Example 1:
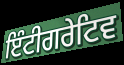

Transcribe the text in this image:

ਇੰਟੀਗਰੇਟਿਵ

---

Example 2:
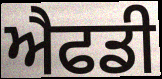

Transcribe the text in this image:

ਐਫਡੀ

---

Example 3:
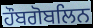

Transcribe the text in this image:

ਹੌਬਗੋਬਲਿਨ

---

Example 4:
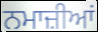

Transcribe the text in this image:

ਨਮਾਜ਼ੀਆਂ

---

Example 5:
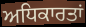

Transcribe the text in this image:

ਅਧਿਕਾਰਤਾਂ